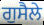
ਗੁਸੈਲੇ